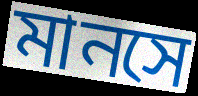
মানসে